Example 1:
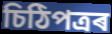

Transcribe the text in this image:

চিঠিপত্ৰৰ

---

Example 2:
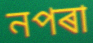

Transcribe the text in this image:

নপৰা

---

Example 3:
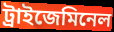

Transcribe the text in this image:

ট্ৰাইজেমিনেল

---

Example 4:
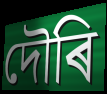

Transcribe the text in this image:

দৌৰি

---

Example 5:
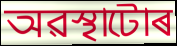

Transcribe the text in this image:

অৱস্থাটোৰ